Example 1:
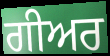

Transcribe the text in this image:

ਗੀਅਰ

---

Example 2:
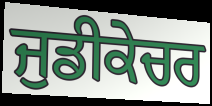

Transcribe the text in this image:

ਜੁਡੀਕੇਚਰ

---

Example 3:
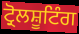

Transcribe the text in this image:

ਟ੍ਰੋਲਸ਼ੂਟਿੰਗ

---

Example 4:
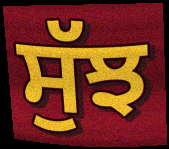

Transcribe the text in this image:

ਸੁੱਝ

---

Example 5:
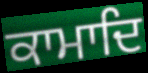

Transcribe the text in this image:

ਕਾਮਾਦਿ